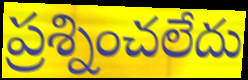
ప్రశ్నించలేదు